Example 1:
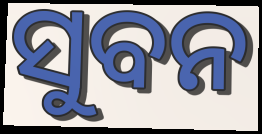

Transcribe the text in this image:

ସୁବନ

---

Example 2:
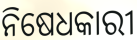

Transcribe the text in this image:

ନିଷେଧକାରୀ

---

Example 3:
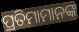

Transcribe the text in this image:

ପ୍ରତିମାମାନଙ୍କ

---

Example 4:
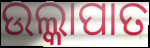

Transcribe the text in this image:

ଉଲ୍କାପାତ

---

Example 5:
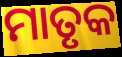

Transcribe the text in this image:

ମାତୃକ